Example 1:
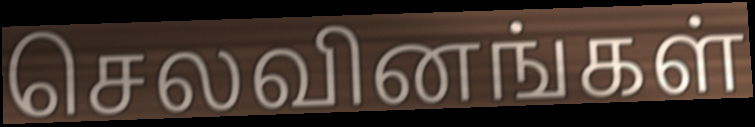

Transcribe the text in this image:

செலவினங்கள்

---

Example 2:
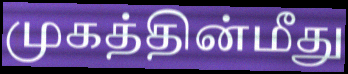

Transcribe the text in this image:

முகத்தின்மீது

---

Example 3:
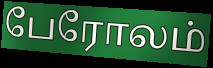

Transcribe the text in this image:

பேரோலம்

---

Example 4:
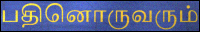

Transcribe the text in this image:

பதினொருவரும்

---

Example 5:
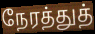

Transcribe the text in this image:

நேரத்துத்